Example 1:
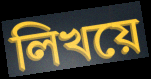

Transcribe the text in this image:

লিখয়ে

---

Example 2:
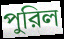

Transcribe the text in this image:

পুরিল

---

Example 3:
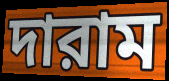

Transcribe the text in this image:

দারাম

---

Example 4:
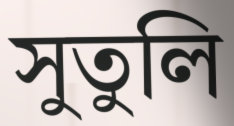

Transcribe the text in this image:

সুতুলি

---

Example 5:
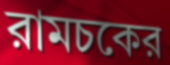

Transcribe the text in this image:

রামচকের